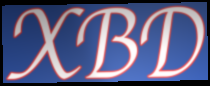
XBD